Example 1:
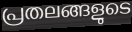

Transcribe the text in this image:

പ്രതലങ്ങളുടെ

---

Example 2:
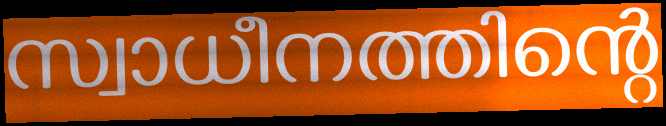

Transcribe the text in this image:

സ്വാധീനത്തിന്റെ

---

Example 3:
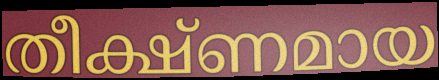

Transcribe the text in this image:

തീക്ഷ്ണമായ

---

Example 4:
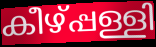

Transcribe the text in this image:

കീഴ്പ്പള്ളി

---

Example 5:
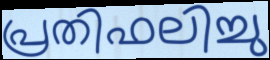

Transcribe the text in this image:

പ്രതിഫലിച്ചു